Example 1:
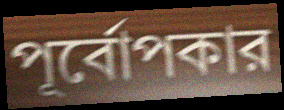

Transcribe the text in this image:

পূর্বোপকার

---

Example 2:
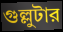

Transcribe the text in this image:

গুল্লুটার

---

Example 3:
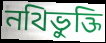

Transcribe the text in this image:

নথিভুক্তি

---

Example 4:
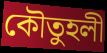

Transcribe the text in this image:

কৌতুহলী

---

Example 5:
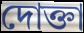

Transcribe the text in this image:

দোক্তা